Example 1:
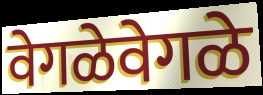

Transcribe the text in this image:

वेगळेवेगळे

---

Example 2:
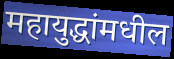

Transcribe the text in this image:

महायुद्धांमधील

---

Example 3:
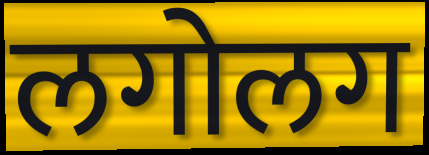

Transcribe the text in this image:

लगोलग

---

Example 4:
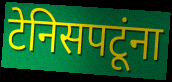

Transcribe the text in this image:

टेनिसपटूंना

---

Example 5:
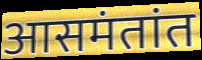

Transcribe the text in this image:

आसमंतांत